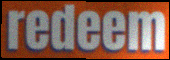
redeem